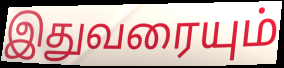
இதுவரையும்